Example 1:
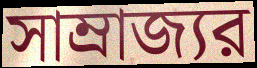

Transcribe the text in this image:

সাম্রাজ্যর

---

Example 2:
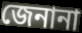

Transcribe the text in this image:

জেনানা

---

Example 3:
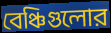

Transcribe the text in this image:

বেঞ্চিগুলোর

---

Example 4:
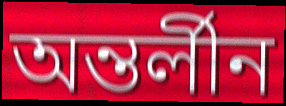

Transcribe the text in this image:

অন্তর্লীন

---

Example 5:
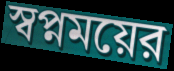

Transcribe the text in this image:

স্বপ্নময়ের